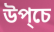
উপ্চে